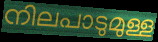
നിലപാടുമുള്ള